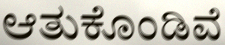
ಆತುಕೊಂಡಿವೆ